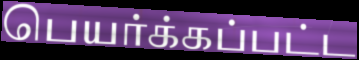
பெயர்க்கப்பட்ட